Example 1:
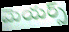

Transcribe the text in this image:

మెయర్స్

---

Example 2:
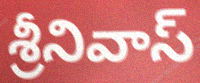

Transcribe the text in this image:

శ్రీనివాస్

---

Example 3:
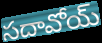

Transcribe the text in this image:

సదావోయ్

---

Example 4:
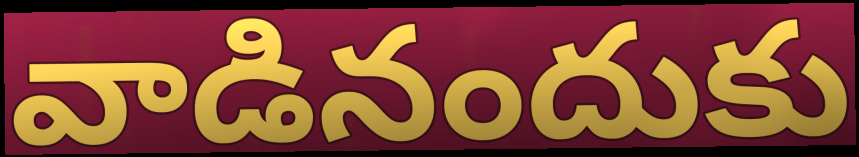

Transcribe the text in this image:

వాడినందుకు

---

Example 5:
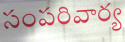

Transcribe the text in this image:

సంపరివార్య